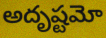
అదృష్టమో